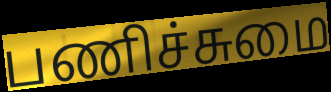
பணிச்சுமை